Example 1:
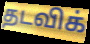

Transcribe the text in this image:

தடவிக்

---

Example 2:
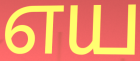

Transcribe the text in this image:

எய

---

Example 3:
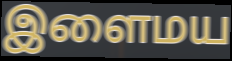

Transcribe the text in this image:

இளைமய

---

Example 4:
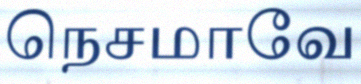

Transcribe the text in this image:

நெசமாவே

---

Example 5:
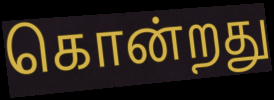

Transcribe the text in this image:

கொன்றது